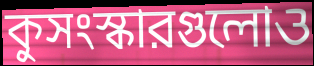
কুসংস্কারগুলোও